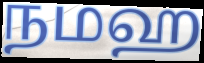
நமஹ